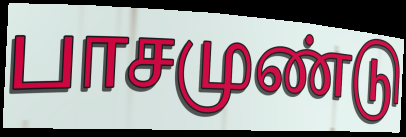
பாசமுண்டு